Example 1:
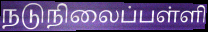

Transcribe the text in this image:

நடுநிலைப்பள்ளி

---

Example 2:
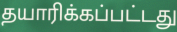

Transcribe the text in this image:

தயாரிக்கப்பட்டது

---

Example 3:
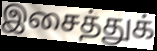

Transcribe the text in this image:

இசைத்துக்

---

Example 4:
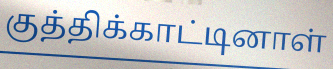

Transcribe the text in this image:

குத்திக்காட்டினாள்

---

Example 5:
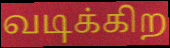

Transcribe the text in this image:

வடிக்கிற